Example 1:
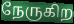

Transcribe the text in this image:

நேருகிற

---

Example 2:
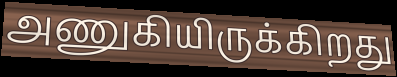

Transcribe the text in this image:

அணுகியிருக்கிறது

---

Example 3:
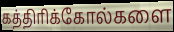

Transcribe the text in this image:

கத்திரிக்கோல்களை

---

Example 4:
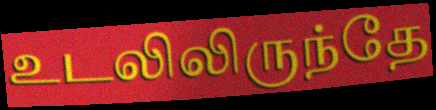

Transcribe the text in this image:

உடலிலிருந்தே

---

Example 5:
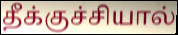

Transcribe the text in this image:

தீக்குச்சியால்